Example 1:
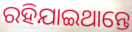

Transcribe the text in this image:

ରହିଯାଇଥାନ୍ତେ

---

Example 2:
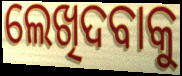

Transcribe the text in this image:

ଲେଖିଦବାକୁ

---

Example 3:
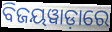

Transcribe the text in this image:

ବିଜୟୱାଡ଼ାରେ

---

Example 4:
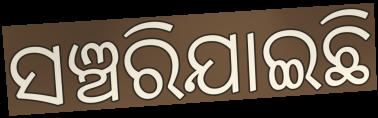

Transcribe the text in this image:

ସଞ୍ଚରିଯାଇଛି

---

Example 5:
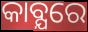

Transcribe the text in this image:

କାବ୍ଯରେ